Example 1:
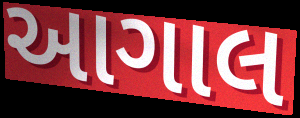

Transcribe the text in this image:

આગાલ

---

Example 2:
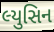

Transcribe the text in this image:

લ્યુસિન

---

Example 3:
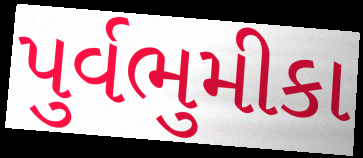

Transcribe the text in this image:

પુર્વભુમીકા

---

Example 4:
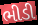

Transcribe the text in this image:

ભીડી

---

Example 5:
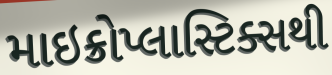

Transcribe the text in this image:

માઇક્રોપ્લાસ્ટિક્સથી